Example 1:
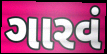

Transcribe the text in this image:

ગારવં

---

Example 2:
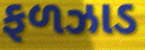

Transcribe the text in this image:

ફળઝાડ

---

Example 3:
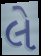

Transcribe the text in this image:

લે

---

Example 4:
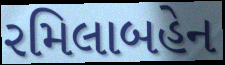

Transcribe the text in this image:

રમિલાબહેન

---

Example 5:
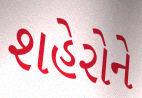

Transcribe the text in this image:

શહેરોને